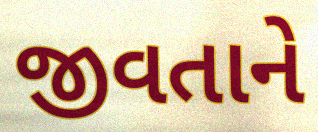
જીવતાને